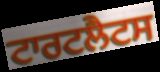
ਟਾਰਟਲੈਟਸ